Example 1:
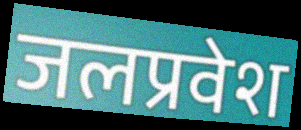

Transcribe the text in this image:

जलप्रवेश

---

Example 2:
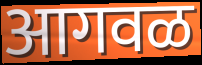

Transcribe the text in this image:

आगवळ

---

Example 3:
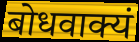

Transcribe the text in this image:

बोधवाक्यं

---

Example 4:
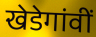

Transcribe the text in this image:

खेडेगांवीं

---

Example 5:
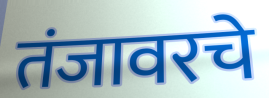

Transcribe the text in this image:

तंजावरचे